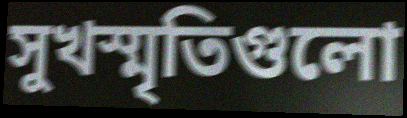
সুখস্মৃতিগুলো